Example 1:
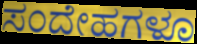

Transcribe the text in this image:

ಸಂದೇಹಗಳೂ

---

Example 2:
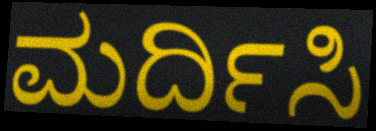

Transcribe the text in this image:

ಮರ್ದಿಸಿ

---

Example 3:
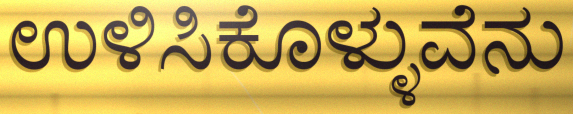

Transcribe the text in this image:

ಉಳಿಸಿಕೊಳ್ಳುವೆನು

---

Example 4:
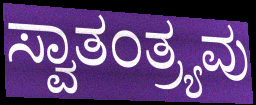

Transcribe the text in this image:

ಸ್ವಾತಂತ್ರ್ಯವು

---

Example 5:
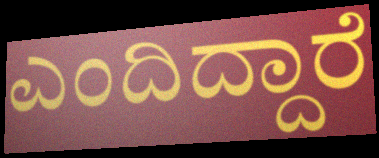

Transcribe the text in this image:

ಎಂದಿದ್ದಾರೆ